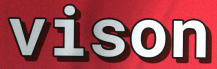
vison